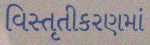
વિસ્તૃતીકરણમાં